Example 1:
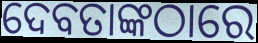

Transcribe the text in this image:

ଦେବତାଙ୍କଠାରେ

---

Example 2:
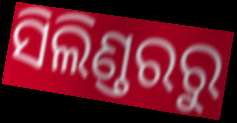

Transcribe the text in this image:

ସିଲିଣ୍ଡରରୁ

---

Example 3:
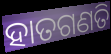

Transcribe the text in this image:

ହାତଗଣତି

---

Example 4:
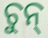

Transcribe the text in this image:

ଚୁନ୍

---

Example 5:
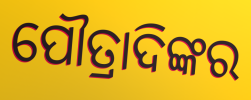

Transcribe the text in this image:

ପୌତ୍ରାଦିଙ୍କର